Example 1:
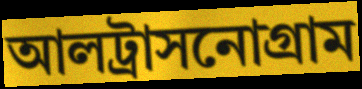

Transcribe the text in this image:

আলট্রাসনোগ্রাম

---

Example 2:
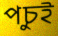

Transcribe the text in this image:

পচুই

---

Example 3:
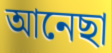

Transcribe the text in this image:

আনেছা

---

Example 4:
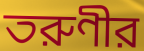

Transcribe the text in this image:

তরুণীর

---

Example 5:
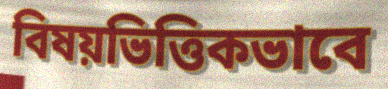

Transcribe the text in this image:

বিষয়ভিত্তিকভাবে